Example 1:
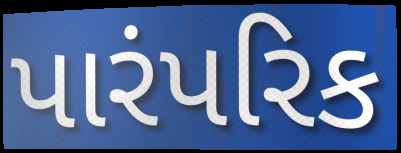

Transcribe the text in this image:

પારંપરિક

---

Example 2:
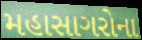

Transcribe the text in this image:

મહાસાગરોના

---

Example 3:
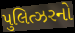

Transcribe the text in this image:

પુલિત્ઝરનો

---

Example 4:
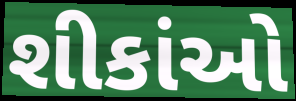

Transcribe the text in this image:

શીકાંઓ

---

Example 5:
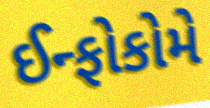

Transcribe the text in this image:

ઈન્ફોકોમે